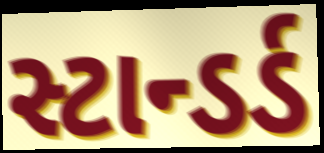
સ્ટાન્ડર્ડ